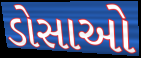
ડોસાઓ